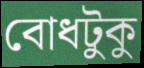
বোধটুকু